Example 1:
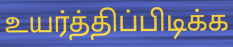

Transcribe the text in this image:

உயர்த்திப்பிடிக்க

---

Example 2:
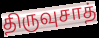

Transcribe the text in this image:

திருவுசாத்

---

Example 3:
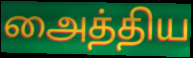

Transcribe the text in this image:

அைத்திய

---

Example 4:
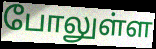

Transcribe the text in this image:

போலுள்ள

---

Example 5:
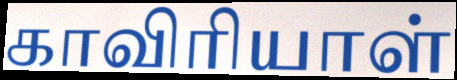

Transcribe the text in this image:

காவிரியாள்